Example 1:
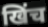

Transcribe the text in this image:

खिंच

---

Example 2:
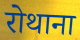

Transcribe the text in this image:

रोथाना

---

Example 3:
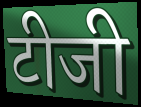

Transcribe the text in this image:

टीजी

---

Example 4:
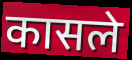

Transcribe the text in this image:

कासले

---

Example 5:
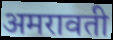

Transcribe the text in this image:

अमरावती